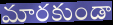
మారకుండా